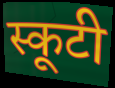
स्कूटी